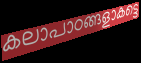
കലാപാഠങ്ങളാകട്ടെ